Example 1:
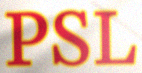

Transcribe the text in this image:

PSL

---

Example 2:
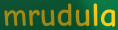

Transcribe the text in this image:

mrudula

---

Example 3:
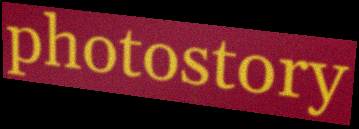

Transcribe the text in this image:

photostory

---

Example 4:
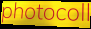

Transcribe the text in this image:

photocoll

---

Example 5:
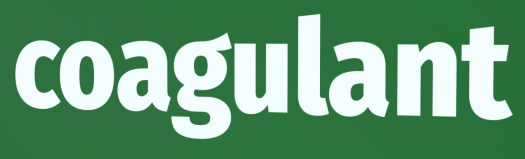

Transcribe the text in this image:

coagulant